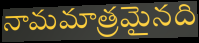
నామమాత్రమైనది